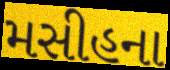
મસીહના